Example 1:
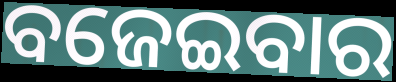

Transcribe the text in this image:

ବଜେଇବାର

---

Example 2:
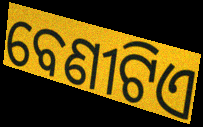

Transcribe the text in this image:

ବେଣୀଟିଏ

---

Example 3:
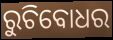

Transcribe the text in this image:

ରୁଚିବୋଧର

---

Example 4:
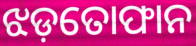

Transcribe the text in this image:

ଝଡ଼ତୋଫାନ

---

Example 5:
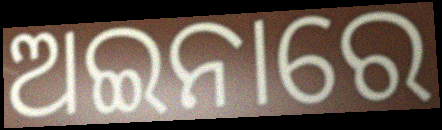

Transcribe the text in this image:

ଅଇନାରେ